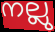
നല്ലു